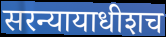
सरन्यायाधीशच